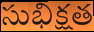
సుభిక్షత